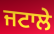
ਜਟਾਲੇ